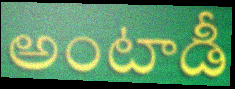
అంటాడీ